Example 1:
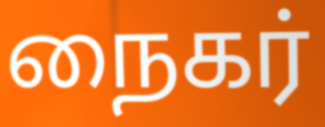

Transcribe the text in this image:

நைகர்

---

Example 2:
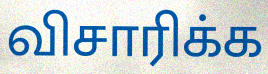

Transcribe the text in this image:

விசாரிக்க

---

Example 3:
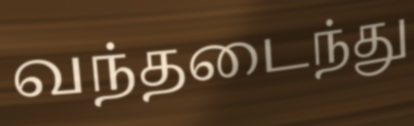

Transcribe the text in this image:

வந்தடைந்து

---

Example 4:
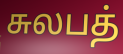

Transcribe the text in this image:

சுலபத்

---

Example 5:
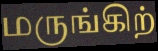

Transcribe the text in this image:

மருங்கிற்